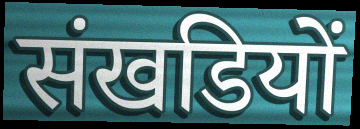
संखडियों